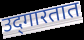
उद्‌गारतात